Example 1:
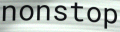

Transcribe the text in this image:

nonstop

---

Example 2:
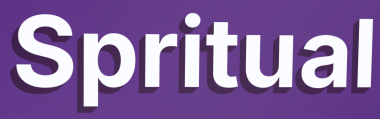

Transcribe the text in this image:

Spritual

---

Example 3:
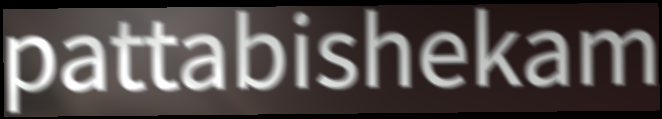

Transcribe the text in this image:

pattabishekam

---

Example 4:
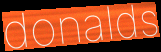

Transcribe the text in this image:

donalds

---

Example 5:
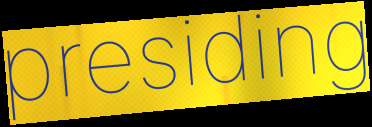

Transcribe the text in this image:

presiding